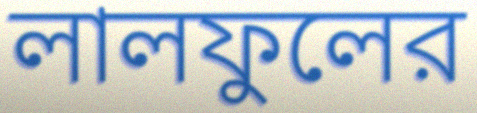
লালফুলের